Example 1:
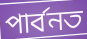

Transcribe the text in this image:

পাৰ্বনত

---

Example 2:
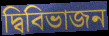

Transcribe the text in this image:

দ্বিবিভাজন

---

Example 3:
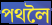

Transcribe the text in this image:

পথলৈ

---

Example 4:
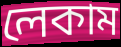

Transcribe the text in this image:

লেকাম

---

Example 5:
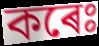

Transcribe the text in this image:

কৰেঃ